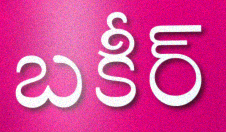
బకీర్